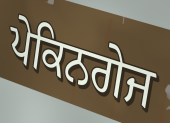
ਪੇਕਿਨਗੇਜ